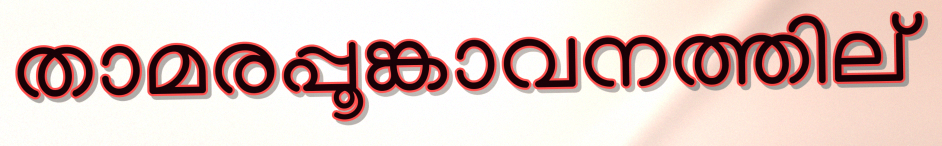
താമരപ്പൂങ്കാവനത്തില്